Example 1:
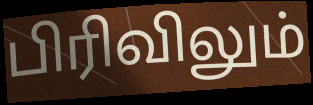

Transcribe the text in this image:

பிரிவிலும்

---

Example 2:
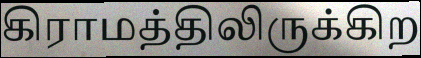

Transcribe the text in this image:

கிராமத்திலிருக்கிற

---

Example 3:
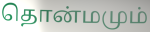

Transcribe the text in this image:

தொன்மமும்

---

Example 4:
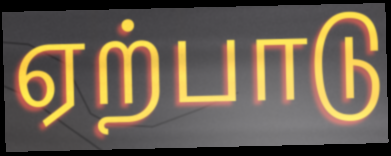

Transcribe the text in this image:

ஏற்பாடு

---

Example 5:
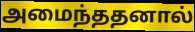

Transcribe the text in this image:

அமைந்ததனால்